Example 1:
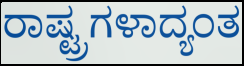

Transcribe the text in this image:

ರಾಷ್ಟ್ರಗಳಾದ್ಯಂತ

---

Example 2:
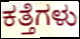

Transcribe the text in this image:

ಕತ್ತೆಗಳು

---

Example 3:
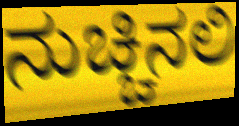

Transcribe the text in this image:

ನುಚ್ಚಿನಲಿ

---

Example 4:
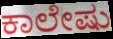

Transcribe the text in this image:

ಕಾಲೇಷು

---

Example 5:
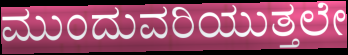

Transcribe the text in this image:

ಮುಂದುವರಿಯುತ್ತಲೇ